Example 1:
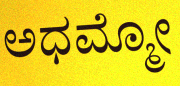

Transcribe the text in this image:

ಅಧಮ್ಮೋ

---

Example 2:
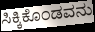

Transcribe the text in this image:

ಸಿಕ್ಕಿಕೊಂಡವನು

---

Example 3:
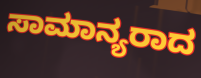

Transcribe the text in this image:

ಸಾಮಾನ್ಯರಾದ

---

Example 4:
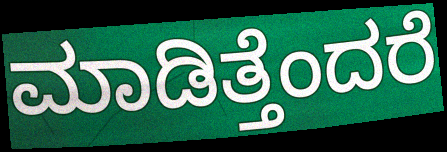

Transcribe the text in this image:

ಮಾಡಿತ್ತೆಂದರೆ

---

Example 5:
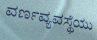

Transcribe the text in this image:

ವರ್ಣವ್ಯವಸ್ಥೆಯು